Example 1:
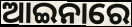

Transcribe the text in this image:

ଆଇନାରେ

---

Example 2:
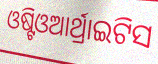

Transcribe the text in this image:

ଓଷ୍ଟିଓଆର୍ଥ୍ରାଇଟିସ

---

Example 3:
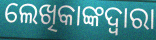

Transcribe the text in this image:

ଲେଖିକାଙ୍କଦ୍ୱାରା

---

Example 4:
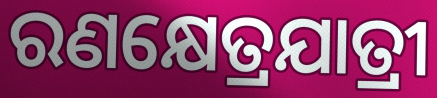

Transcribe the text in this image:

ରଣକ୍ଷେତ୍ରଯାତ୍ରୀ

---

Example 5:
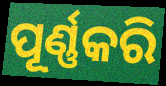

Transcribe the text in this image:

ପୂର୍ଣ୍ଣକରି